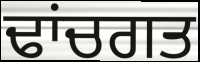
ਢਾਂਚਗਤ